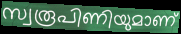
സ്വരൂപിണിയുമാണ്